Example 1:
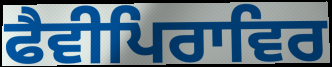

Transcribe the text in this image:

ਫੈਵੀਪਿਰਾਵਿਰ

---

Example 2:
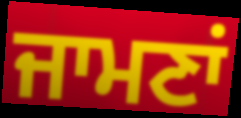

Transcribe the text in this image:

ਜਾਮਣਾਂ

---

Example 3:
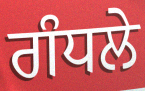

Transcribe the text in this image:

ਗੰਧਲੇ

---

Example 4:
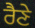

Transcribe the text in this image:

ਰੈਣੇ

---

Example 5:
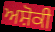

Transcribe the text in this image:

ਅਸ਼ੋਕੀ